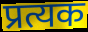
प्रत्यक